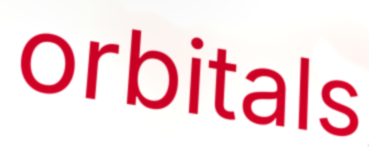
orbitals